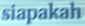
siapakah